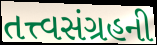
તત્ત્વસંગ્રહની